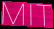
MIT